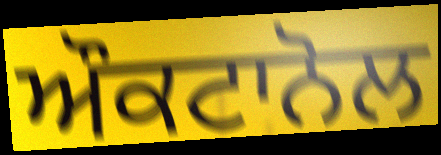
ਔਕਟਾਨੋਲ